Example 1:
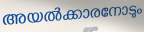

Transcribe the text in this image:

അയൽക്കാരനോടും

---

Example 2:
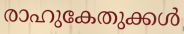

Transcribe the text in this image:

രാഹുകേതുക്കൾ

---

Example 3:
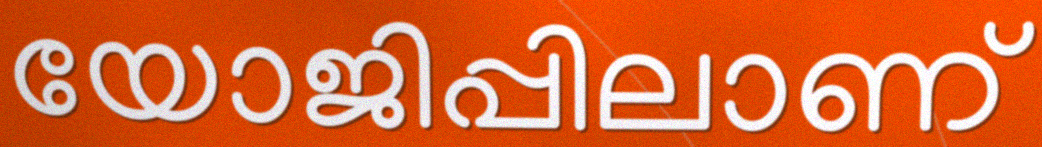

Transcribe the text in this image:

യോജിപ്പിലാണ്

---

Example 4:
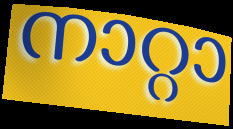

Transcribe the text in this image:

നാറ്റാ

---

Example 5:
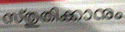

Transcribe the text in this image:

സ്തുതിക്കാനും